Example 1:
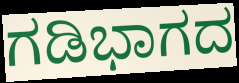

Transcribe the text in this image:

ಗಡಿಭಾಗದ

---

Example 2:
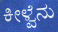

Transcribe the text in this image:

ಕೀಳ್ವೆನು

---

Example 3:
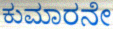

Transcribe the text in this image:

ಕುಮಾರನೇ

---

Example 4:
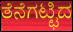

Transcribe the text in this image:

ತೆನೆಗಟ್ಟಿದ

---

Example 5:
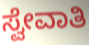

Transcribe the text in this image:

ಸ್ವೇವಾತಿ